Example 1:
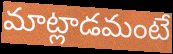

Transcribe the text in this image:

మాట్లాడమంటే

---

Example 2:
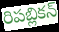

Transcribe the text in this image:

రిపబ్లికన్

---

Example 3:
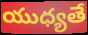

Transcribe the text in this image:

యుధ్యతే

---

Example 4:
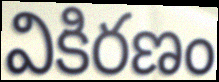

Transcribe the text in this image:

వికిరణం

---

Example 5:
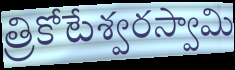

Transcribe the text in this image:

త్రికోటేశ్వరస్వామి